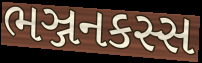
ભઞ્જનકસ્સ